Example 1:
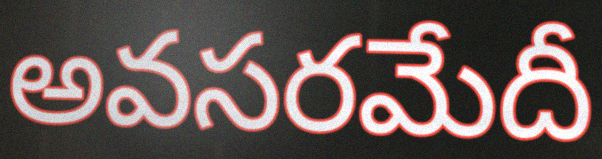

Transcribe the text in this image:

అవసరమేదీ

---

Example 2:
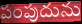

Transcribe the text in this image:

పంపుదును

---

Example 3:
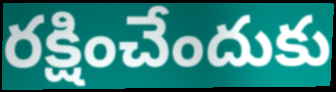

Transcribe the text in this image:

రక్షించేందుకు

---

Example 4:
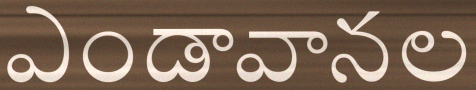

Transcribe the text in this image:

ఎండావానల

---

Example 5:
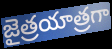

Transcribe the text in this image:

జైత్రయాత్రగా